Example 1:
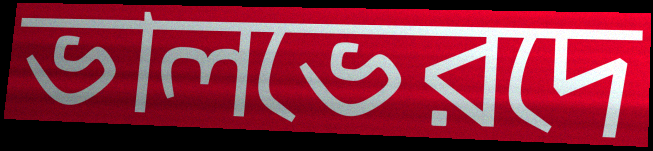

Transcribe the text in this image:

ভালভেরদে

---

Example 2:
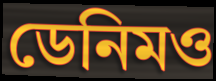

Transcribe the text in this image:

ডেনিমও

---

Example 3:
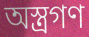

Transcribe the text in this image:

অস্ত্রগণ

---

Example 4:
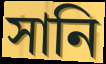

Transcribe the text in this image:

সানি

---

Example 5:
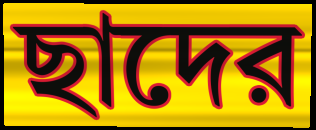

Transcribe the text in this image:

ছাদের